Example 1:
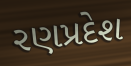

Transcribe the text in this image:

રણપ્રદેશ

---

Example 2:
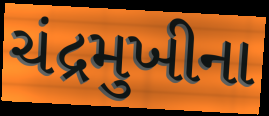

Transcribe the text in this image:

ચંદ્રમુખીના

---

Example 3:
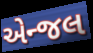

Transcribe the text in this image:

એન્જલ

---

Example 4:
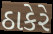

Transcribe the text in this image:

ઠાકેરે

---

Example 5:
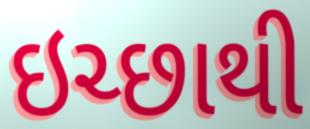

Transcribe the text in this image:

ઇચ્છાથી